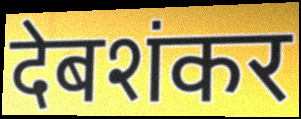
देबशंकर